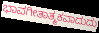
ಭಾವಗೀತಾತ್ಮಕವಾದುದು